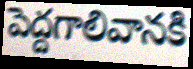
పెద్దగాలివానకి